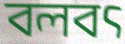
বলবৎ